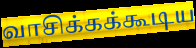
வாசிக்கக்கூடிய